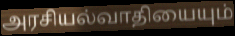
அரசியல்வாதியையும்